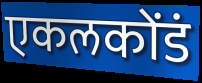
एकलकोंडं